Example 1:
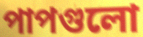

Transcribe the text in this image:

পাপগুলো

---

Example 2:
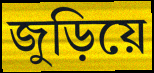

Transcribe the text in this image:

জুড়িয়ে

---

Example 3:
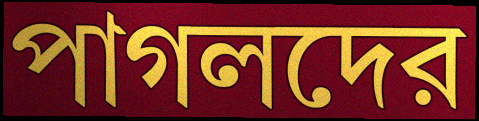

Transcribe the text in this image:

পাগলদের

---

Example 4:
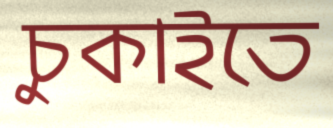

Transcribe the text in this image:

চুকাইতে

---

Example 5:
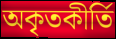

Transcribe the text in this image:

অকৃতকীর্তি